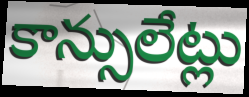
కాన్సులేట్లు